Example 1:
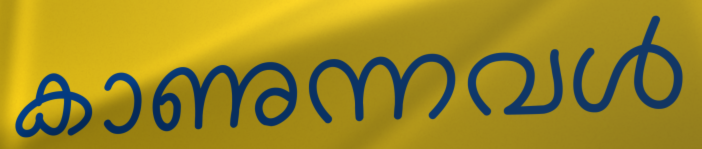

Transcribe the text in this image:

കാണുന്നവൾ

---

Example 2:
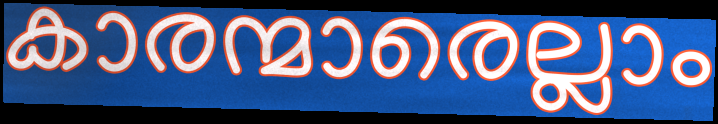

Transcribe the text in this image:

കാരന്മാരെല്ലാം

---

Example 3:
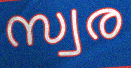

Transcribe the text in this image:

സ്വര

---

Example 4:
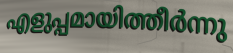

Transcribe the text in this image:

എളുപ്പമായിത്തീർന്നു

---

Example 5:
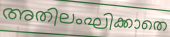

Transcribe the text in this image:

അതിലംഘിക്കാതെ